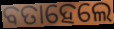
ବତାହେଲେ